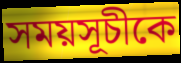
সময়সূচীকে